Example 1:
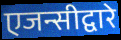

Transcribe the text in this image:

एजन्सीद्वारे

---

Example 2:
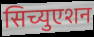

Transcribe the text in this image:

सिच्युएशन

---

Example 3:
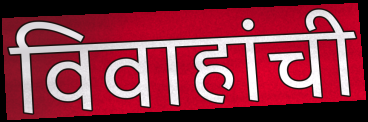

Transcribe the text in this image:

विवाहांची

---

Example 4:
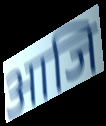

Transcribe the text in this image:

आजि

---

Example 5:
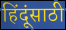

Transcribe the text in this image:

हिंदूंसाठी